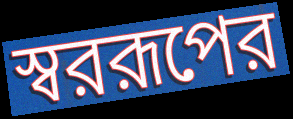
স্বররূপের